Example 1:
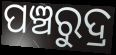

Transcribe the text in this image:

ପଞ୍ଚରୁଦ୍ର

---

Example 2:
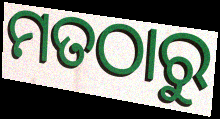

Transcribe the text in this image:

ମତଠାରୁ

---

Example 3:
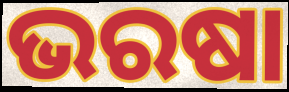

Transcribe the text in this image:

ଭରଷା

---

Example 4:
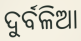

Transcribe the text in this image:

ଦୁର୍ବଳିଆ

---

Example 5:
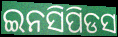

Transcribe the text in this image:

ଇନସିପିଡସ